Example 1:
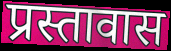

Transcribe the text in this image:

प्रस्तावास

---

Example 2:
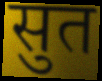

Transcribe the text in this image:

सुत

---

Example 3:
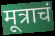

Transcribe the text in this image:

मूत्राचं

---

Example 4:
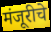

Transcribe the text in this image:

मंजूरीचे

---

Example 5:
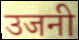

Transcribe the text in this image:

उजनी